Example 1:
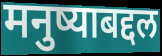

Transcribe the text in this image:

मनुष्याबद्दल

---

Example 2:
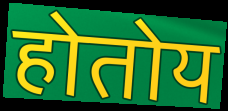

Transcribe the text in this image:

होतोय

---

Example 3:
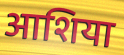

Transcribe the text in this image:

आशिया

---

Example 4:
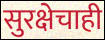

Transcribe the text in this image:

सुरक्षेचाही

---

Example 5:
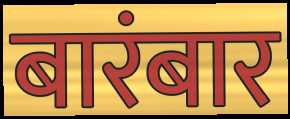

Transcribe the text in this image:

बारंबार